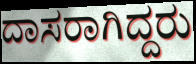
ದಾಸರಾಗಿದ್ದರು